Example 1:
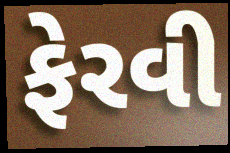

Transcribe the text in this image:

ફેરવી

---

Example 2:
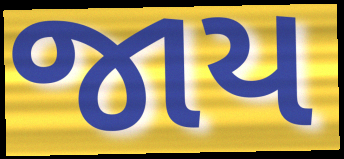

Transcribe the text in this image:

જાય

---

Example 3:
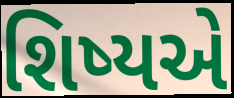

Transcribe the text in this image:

શિષ્યએ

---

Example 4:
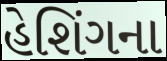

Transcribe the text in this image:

હેશિંગના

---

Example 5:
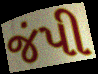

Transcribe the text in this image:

જંપી